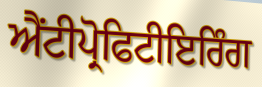
ਐਂਟੀਪ੍ਰੋਫਿਟੀਇਰਿੰਗ